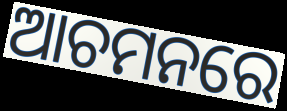
ଆଚମନରେ